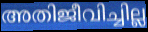
അതിജീവിച്ചില്ല